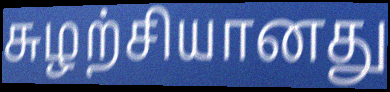
சுழற்சியானது